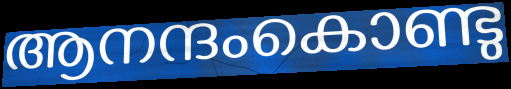
ആനന്ദംകൊണ്ടു